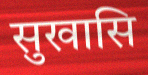
सुखासि